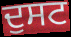
ਦੁਸਟ